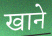
खाने